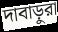
দাবাড়ুরা